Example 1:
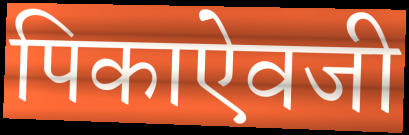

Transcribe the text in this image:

पिकाऐवजी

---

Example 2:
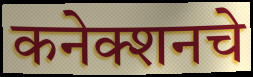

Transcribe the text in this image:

कनेक्शनचे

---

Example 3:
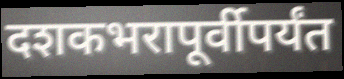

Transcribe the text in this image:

दशकभरापूर्वीपर्यंत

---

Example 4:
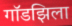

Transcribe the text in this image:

गॉडझिला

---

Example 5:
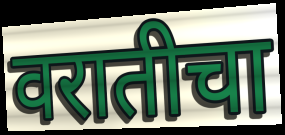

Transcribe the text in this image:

वरातीचा